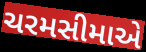
ચરમસીમાએ